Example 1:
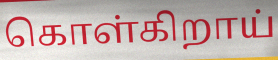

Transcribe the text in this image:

கொள்கிறாய்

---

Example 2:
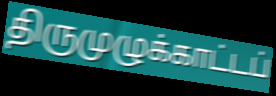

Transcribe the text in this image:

திருமுழுக்காட்டப்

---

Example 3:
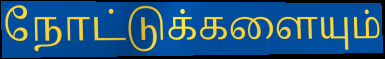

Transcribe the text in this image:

நோட்டுக்களையும்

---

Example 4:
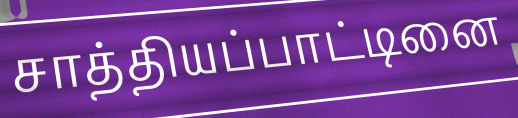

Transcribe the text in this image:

சாத்தியப்பாட்டினை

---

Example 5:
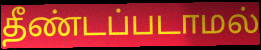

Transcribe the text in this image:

தீண்டப்படாமல்